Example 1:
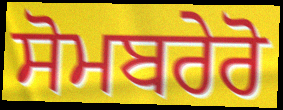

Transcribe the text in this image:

ਸੋਮਬਰੇਰੋ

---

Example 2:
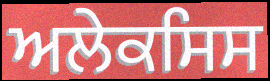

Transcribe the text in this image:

ਅਲੇਕਸਿਸ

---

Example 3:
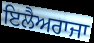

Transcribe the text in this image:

ਇਲੈਅਰਾਜਾ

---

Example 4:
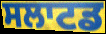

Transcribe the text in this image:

ਸਲਾਟਡ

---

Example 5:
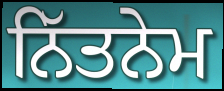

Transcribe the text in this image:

ਨਿੱਤਨੇਮ